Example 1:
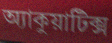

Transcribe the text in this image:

অ্যাকুয়াটিক্স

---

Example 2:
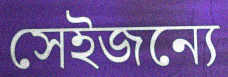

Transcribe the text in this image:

সেইজন্যে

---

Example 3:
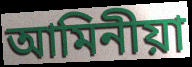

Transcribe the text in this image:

আমিনীয়া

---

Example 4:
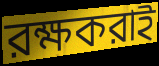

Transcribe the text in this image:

রক্ষকরাই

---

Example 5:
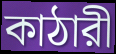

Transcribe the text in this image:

কাঠারী